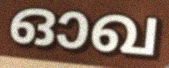
ഓഖ